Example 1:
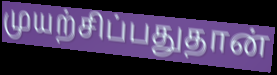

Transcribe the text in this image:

முயற்சிப்பதுதான்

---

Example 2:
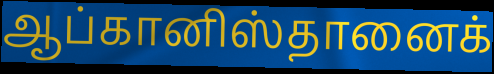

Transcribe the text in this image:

ஆப்கானிஸ்தானைக்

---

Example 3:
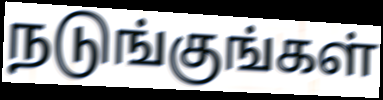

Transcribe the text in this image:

நடுங்குங்கள்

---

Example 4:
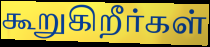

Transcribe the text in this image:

கூறுகிறீர்கள்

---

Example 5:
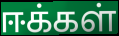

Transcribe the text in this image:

ஈக்கள்